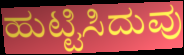
ಹುಟ್ಟಿಸಿದುವು